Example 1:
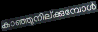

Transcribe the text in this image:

കാഞ്ഞുനില്ക്കുമ്പോൾ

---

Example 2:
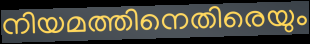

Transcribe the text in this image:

നിയമത്തിനെതിരെയും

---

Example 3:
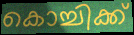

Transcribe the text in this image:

കൊച്ചിക്ക്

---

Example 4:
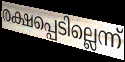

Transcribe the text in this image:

രക്ഷപ്പെടില്ലെന്ന്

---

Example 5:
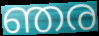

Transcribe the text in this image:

ഞര